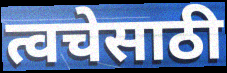
त्वचेसाठी